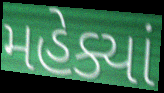
મહેક્યાં